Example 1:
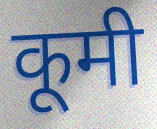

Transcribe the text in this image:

कूमी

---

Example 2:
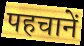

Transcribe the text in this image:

पहचानें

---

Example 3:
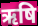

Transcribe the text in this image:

ऋषि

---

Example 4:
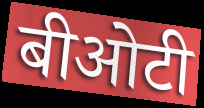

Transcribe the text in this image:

बीओटी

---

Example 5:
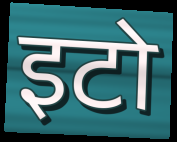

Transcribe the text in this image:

इटो